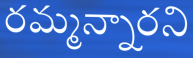
రమ్మన్నారని